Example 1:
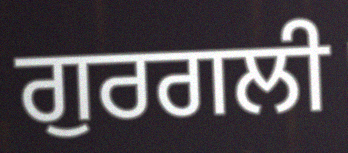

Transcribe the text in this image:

ਗੁਰਗਲੀ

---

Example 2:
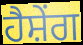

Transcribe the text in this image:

ਹੈਸ਼ੇਂਗ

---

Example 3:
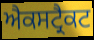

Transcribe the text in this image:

ਐਕਸਟ੍ਰੈਕਟ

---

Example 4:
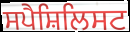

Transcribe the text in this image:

ਸਪੈਸ਼ਿਲਿਸਟ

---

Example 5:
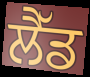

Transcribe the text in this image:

ਲੈੱਡ